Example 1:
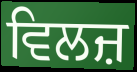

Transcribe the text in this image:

ਵਿਲਜ਼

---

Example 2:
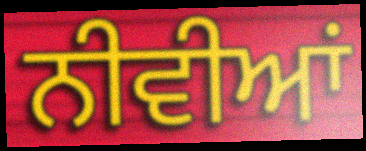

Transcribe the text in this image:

ਨੀਵੀਆਂ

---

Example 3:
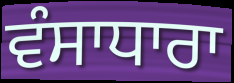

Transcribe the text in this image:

ਵੰਸਾਧਾਰਾ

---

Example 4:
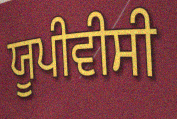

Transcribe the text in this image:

ਯੂਪੀਵੀਸੀ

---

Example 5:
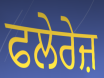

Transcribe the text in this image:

ਫਲੇਰੇਜ਼